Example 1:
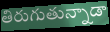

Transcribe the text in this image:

తిరుగుతున్నాడా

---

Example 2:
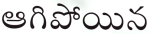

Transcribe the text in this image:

ఆగిపోయిన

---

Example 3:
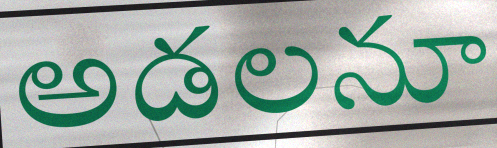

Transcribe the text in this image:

అడలనూ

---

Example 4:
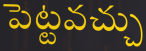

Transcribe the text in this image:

పెట్టవచ్చు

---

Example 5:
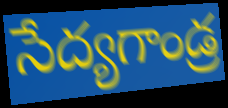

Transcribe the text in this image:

సేద్యగాండ్ర